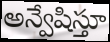
అన్వేషిస్తూ